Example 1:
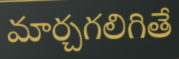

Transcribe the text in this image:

మార్చగలిగితే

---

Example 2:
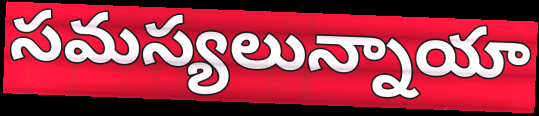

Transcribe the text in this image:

సమస్యలున్నాయా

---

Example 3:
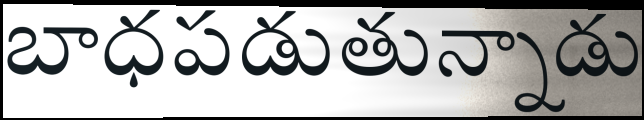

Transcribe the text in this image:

బాధపడుతున్నాడు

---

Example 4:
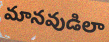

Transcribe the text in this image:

మానవుడిలా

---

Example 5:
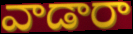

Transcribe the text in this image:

వాడారా